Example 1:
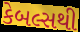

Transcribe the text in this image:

કેબલ્સથી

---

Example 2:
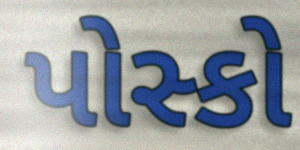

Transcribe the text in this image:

પોસ્કો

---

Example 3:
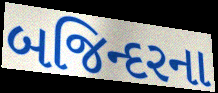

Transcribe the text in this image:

બજિન્દરના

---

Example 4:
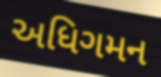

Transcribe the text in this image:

અધિગમન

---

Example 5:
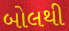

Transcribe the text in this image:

બોલથી